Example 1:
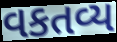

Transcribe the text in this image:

વકતવ્ય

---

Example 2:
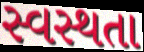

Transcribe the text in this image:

સ્વસ્થતા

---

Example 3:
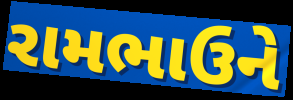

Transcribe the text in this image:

રામભાઉને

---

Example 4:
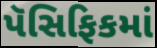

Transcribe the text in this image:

પૅસિફિકમાં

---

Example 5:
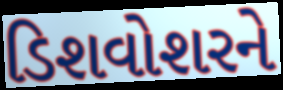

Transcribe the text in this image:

ડિશવોશરને